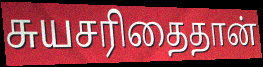
சுயசரிதைதான்